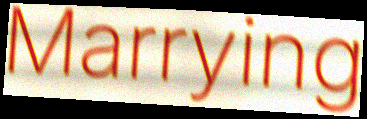
Marrying